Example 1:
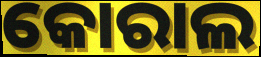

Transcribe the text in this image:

କୋରାଲ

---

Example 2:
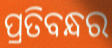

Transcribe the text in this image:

ପ୍ରତିବନ୍ଧର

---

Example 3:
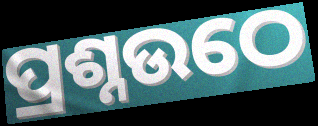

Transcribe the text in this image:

ପ୍ରଶ୍ନଉଠେ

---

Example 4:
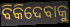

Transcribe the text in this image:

ବିକିଦେବାକୁ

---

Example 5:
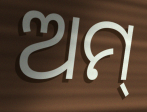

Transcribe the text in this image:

ଅମ୍